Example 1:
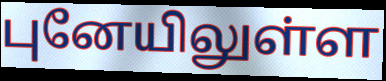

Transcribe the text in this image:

புனேயிலுள்ள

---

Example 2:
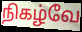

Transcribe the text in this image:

நிகழ்வே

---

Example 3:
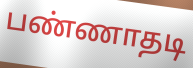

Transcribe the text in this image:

பண்ணாதடி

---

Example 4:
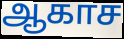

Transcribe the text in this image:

ஆகாச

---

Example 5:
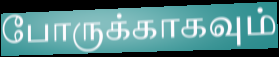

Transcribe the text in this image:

போருக்காகவும்